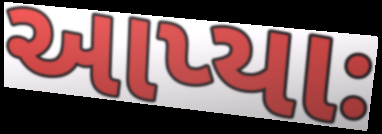
આપ્યાઃ